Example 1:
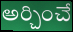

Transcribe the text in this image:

అర్చించే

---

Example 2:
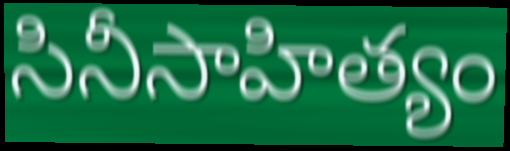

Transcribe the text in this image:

సినీసాహిత్యం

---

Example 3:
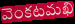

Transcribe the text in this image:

వెంకటమఖి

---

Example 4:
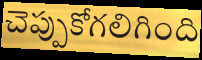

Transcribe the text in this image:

చెప్పుకోగలిగింది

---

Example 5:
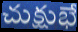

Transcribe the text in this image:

చుక్షుభే